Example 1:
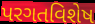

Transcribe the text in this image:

પરગતવિશેષ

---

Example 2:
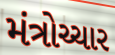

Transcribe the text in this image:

મંત્રોચ્ચાર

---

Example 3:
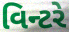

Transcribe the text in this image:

વિન્ટરે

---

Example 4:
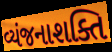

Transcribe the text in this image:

વ્યંજનાશક્તિ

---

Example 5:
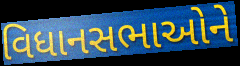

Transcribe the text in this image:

વિધાનસભાઓને